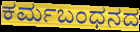
ಕರ್ಮಬಂಧನದ